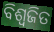
ବିଶ୍ଵଜିତ